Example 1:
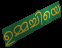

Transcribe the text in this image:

ഉമ്മച്ചിയെ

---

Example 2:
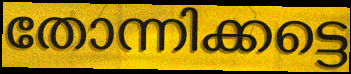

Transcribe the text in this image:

തോന്നിക്കട്ടെ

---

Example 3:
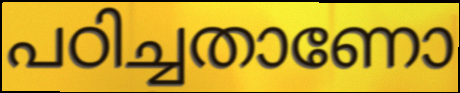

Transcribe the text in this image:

പഠിച്ചതാണോ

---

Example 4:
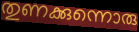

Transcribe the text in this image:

തുണക്കുന്നൊരു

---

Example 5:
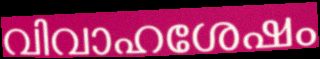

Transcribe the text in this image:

വിവാഹശേഷം